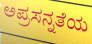
ಅಪ್ರಸನ್ನತೆಯ